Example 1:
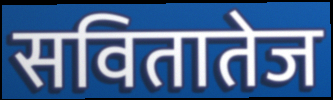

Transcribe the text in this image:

सवितातेज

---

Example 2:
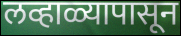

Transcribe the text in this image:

लव्हाळ्यापासून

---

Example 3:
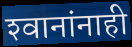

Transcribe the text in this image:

श्वानांनाही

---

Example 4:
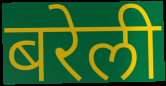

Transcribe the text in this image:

बरेली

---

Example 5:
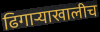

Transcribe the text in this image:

ढिगाऱ्याखालीच